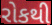
રોકથી